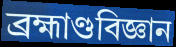
ব্ৰহ্মাণ্ডবিজ্ঞান